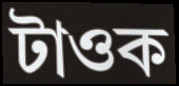
টাওক